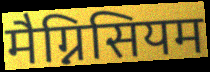
मैग्निसियम